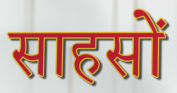
साहसों